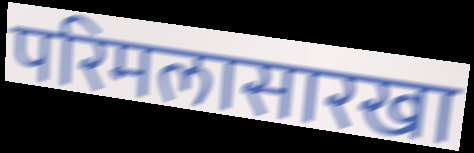
परिमलासारखा